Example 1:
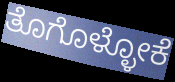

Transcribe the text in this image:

ತೊಗೊಳ್ಳೋಕೆ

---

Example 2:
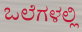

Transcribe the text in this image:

ಒಲೆಗಳಲ್ಲಿ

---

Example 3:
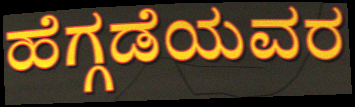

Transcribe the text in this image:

ಹೆಗ್ಗಡೆಯವರ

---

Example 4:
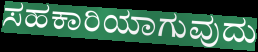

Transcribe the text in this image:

ಸಹಕಾರಿಯಾಗುವುದು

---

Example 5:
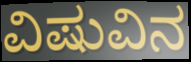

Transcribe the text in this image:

ವಿಷುವಿನ